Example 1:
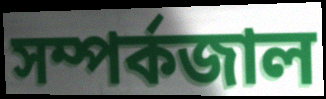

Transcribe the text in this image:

সম্পর্কজাল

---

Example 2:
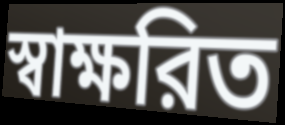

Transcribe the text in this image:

স্বাক্ষরিত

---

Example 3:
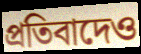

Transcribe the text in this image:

প্রতিবাদেও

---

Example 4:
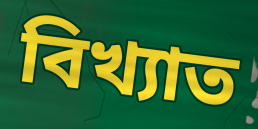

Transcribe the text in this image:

বিখ্যাত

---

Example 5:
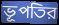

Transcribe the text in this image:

ভূপতির